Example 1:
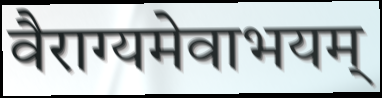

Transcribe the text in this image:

वैराग्यमेवाभयम्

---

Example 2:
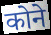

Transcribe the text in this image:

कोने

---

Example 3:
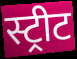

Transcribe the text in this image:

स्ट्रीट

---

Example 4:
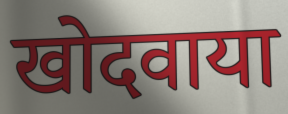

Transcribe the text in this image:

खोदवाया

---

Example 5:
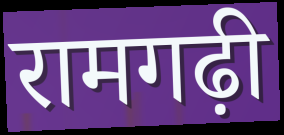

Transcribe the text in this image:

रामगढ़ी